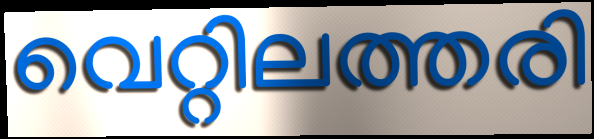
വെറ്റിലത്തരി